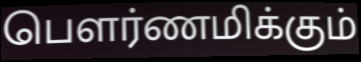
பௌர்ணமிக்கும்